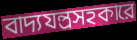
বাদ্যযন্ত্রসহকারে